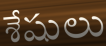
శేషులు